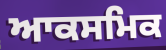
ਆਕਸਮਿਕ